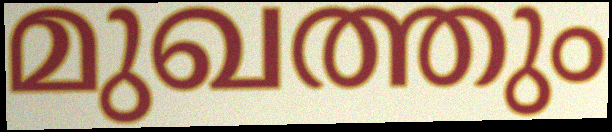
മുഖത്തും